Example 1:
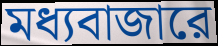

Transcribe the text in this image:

মধ্যবাজারে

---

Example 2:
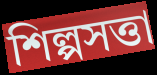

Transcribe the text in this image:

শিল্পসত্তা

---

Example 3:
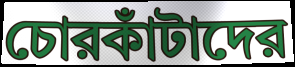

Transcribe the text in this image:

চোরকাঁটাদের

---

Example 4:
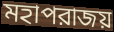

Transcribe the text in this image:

মহাপরাজয়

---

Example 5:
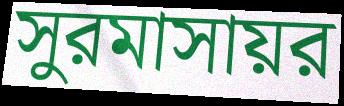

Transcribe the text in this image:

সুরমাসায়র